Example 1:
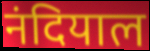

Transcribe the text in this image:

नंदियाल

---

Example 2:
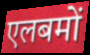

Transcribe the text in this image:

एलबमों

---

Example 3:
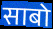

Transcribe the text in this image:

साबो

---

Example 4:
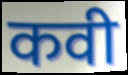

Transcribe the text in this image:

कवी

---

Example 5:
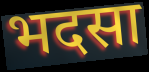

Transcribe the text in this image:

भदसा